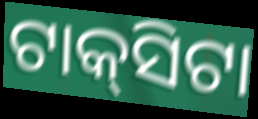
ଟାକ୍‌ସିଟା